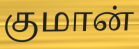
குமான்